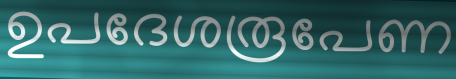
ഉപദേശരൂപേണ